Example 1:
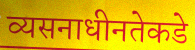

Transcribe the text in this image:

व्यसनाधीनतेकडे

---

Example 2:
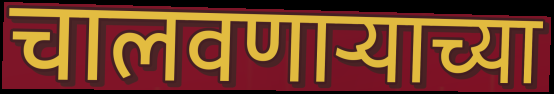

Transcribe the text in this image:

चालवणार्‍याच्या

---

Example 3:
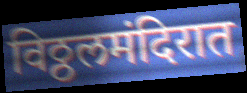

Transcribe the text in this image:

विठ्ठलमंदिरात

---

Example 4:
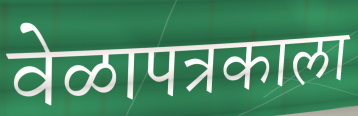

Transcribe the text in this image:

वेळापत्रकाला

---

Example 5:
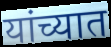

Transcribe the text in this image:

यांच्यात